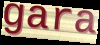
gara